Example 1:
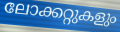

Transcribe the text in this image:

ലോക്കറ്റുകളും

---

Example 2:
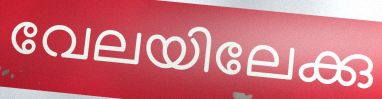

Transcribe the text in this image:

വേലയിലേക്കു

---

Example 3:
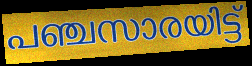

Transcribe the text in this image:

പഞ്ചസാരയിട്ട്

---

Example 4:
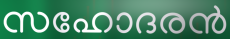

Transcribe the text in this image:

സഹോദരൻ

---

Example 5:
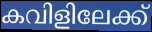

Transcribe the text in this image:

കവിളിലേക്ക്